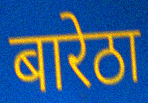
बारेठा